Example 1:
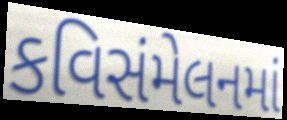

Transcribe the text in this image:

કવિસંમેલનમાં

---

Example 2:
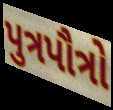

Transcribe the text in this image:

પુત્રપૌત્રો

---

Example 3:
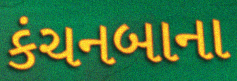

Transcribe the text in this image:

કંચનબાના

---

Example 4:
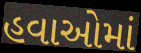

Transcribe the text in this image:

હવાઓમાં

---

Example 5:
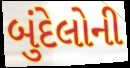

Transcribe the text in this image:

બુંદેલોની